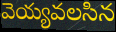
వెయ్యవలసిన